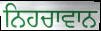
ਨਿਹਚਾਵਾਨ